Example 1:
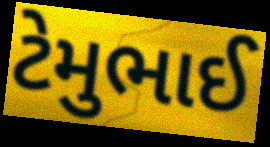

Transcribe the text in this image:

ટેમુભાઈ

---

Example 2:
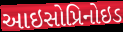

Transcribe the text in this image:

આઇસોપ્રિનોઇડ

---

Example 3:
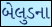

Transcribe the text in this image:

બેલુડના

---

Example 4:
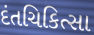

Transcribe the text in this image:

દંતચિકિત્સા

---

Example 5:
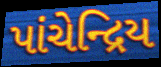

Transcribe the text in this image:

પાંચેન્દ્રિય